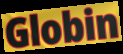
Globin